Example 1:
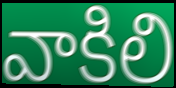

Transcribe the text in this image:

వాకిలి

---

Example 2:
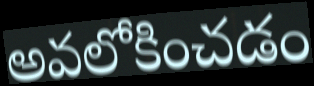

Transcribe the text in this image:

అవలోకించడం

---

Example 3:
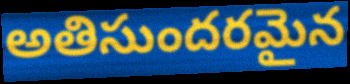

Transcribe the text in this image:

అతిసుందరమైన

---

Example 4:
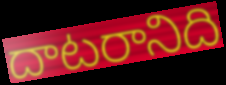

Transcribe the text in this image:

దాటరానిది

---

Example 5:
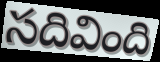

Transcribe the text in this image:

సదివింది